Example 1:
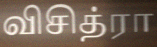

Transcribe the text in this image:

விசித்ரா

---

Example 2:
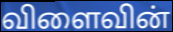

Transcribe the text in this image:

விளைவின்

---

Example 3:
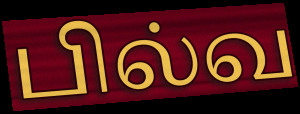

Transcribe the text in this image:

பில்வ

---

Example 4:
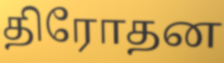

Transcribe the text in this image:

திரோதன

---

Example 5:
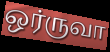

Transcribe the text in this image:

ஒர்ருவா